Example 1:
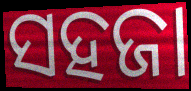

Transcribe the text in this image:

ସହଜା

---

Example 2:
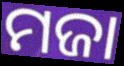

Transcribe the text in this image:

ମଜା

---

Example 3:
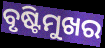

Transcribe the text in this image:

ବୃଷ୍ଟିମୁଖର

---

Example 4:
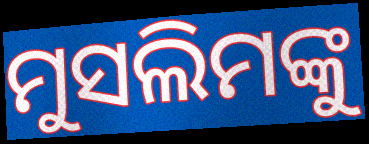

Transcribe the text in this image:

ମୁସଲିମଙ୍କୁ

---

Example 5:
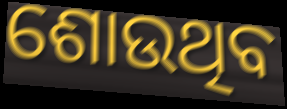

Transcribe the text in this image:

ଶୋଉଥିବ